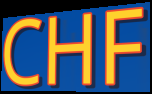
CHF